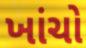
ખાંચો